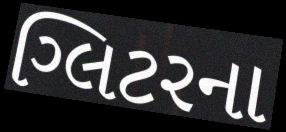
ગ્લિટરના